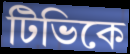
টিভিকে